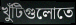
খুঁটিগুলোতে